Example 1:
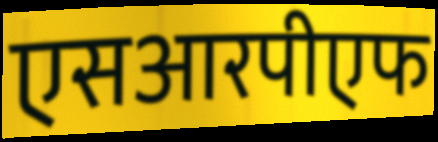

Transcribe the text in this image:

एसआरपीएफ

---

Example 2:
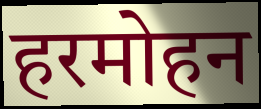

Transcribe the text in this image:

हरमोहन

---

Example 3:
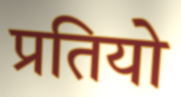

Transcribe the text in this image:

प्रतियो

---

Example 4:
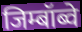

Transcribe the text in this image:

जिम्बॉब्वे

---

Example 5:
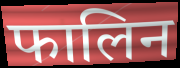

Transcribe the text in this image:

फालिन